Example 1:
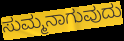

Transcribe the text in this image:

ಸುಮ್ಮನಾಗುವುದು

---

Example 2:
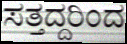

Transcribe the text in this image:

ಸತ್ತದ್ದರಿಂದ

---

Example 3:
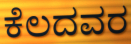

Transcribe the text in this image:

ಕೆಲದವರ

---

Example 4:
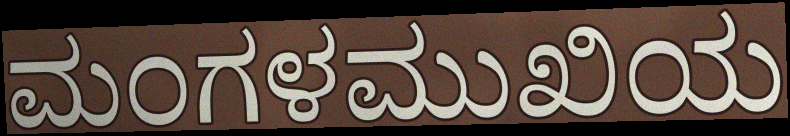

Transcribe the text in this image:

ಮಂಗಳಮುಖಿಯ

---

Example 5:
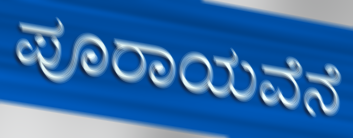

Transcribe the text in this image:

ಪೂರಾಯವೆನೆ